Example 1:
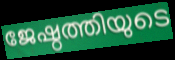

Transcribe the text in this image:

ജേഷ്ഠത്തിയുടെ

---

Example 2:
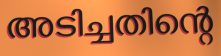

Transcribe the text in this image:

അടിച്ചതിന്റെ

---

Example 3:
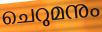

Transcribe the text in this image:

ചെറുമനും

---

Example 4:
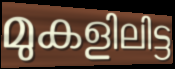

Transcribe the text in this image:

മുകളിലിട്ട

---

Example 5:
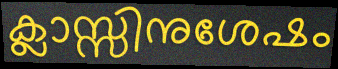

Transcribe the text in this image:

ക്ലാസ്സിനുശേഷം